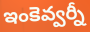
ఇంకెవ్వర్నీ